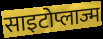
साइटोप्लाज्म